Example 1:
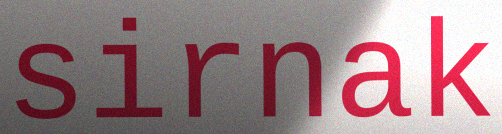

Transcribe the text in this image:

sirnak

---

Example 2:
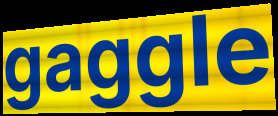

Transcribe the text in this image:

gaggle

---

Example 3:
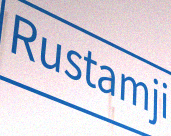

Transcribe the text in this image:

Rustamji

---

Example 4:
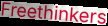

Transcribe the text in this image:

Freethinkers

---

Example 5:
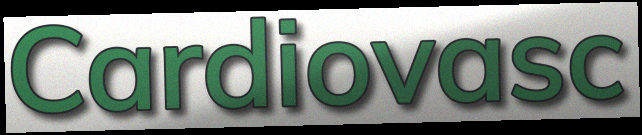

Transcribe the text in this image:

Cardiovasc